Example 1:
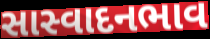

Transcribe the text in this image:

સાસ્વાદનભાવ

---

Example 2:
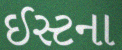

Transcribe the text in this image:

ઈસ્ટના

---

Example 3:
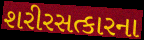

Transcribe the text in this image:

શરીરસત્કારના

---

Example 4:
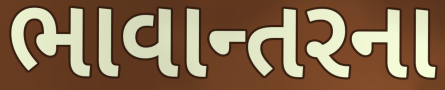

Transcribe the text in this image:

ભાવાન્તરના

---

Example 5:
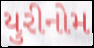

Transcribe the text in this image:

યુરીનોમ